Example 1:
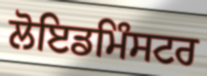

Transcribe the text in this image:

ਲੋਇਡਮਿੰਸਟਰ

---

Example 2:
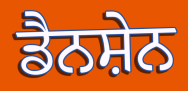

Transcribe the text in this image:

ਡੈਨਸ਼ੇਨ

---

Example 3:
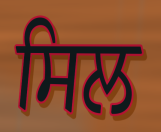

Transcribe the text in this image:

ਸਿਲ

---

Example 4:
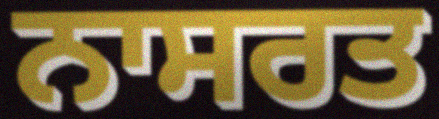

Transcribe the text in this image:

ਨਾਸਰਤ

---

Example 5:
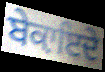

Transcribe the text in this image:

ਬੇਕ਼ਾਇਦੇ